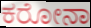
ಕರೋನಾ